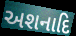
અશનાદિ